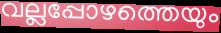
വല്ലപ്പോഴത്തെയും